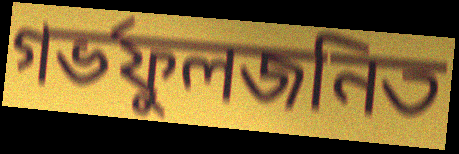
গর্ভফুলজনিত